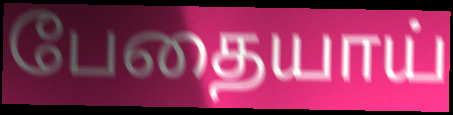
பேதையாய்